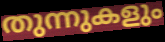
തുന്നുകളും